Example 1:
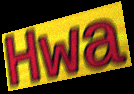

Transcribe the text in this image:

Hwa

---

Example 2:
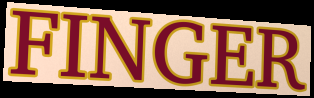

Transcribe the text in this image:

FINGER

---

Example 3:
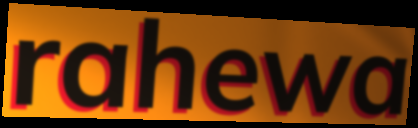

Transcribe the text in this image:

rahewa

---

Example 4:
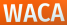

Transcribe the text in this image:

WACA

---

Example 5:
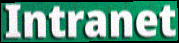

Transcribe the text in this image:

Intranet